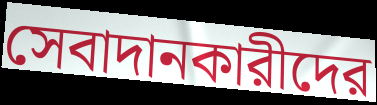
সেবাদানকারীদের